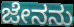
ಜೇನನು